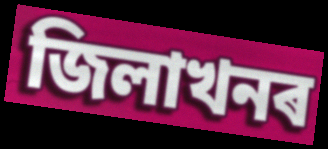
জিলাখনৰ